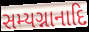
સમ્યગ્નાનાદિ